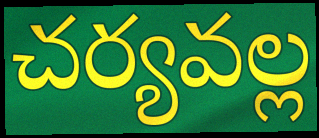
చర్యవల్ల